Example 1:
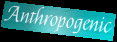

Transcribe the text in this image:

Anthropogenic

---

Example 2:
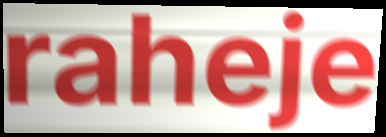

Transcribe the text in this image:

raheje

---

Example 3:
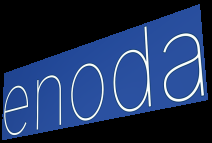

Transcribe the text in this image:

enoda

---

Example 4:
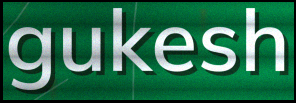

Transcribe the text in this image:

gukesh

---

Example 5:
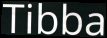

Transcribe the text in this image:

Tibba